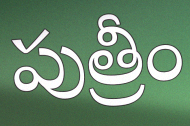
పుత్రీం